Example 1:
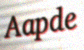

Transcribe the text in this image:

Aapde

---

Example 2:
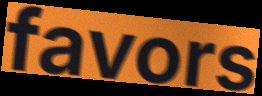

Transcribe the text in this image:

favors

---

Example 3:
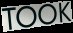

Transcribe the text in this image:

TOOK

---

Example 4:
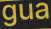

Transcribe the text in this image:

gua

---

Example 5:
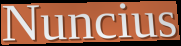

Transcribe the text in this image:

Nuncius